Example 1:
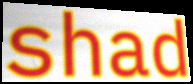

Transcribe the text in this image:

shad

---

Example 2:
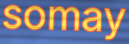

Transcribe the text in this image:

somay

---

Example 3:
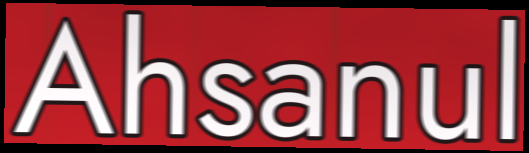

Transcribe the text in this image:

Ahsanul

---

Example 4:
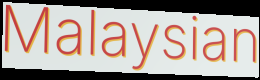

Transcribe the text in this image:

Malaysian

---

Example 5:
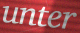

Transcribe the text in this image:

unter